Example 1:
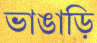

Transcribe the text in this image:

ভাঙাড়ি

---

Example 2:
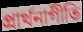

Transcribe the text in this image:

প্রার্থনাগীতি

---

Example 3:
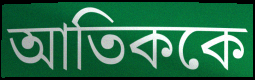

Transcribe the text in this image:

আতিককে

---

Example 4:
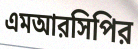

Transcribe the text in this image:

এমআরসিপির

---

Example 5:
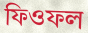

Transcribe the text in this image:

ফিওফল